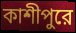
কাশীপুরে